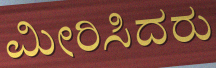
ಮೀರಿಸಿದರು